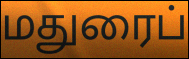
மதுரைப்